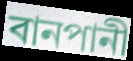
বানপানী